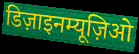
डिज़ाइनम्यूज़िओ